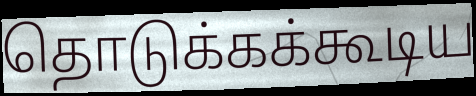
தொடுக்கக்கூடிய